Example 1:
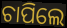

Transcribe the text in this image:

ଚାପିଲେ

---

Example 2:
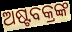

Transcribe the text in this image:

ଅଷ୍ଟବକ୍ରଙ୍କ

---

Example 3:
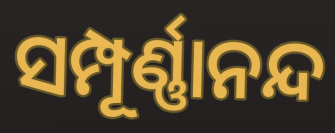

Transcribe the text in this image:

ସମ୍ପୂର୍ଣ୍ଣାନନ୍ଦ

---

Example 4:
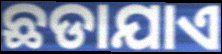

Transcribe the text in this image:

ଛଡାଯାଏ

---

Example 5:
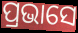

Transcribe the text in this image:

ପ୍ରଭାସେ